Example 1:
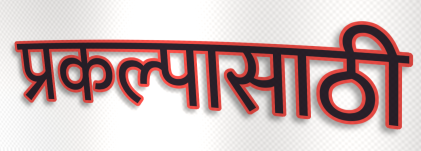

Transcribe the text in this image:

प्रकल्पासाठी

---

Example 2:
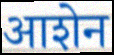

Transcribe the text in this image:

आशेन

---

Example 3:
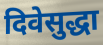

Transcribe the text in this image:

दिवेसुद्धा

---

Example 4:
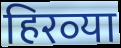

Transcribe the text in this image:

हिरव्‍या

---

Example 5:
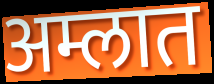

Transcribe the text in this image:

अम्लात